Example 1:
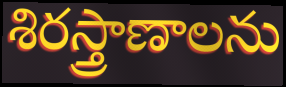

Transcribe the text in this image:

శిరస్త్రాణాలను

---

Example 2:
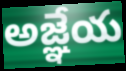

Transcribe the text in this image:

అజ్ఞేయ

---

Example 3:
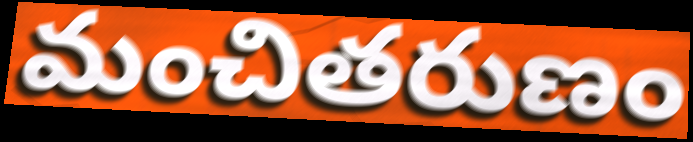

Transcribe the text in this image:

మంచితరుణం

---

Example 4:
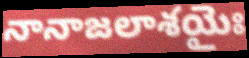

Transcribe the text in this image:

నానాజలాశయైః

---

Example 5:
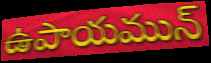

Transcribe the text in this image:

ఉపాయమున్